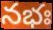
నభః